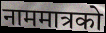
नाममात्रको